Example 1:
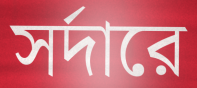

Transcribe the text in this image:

সর্দারে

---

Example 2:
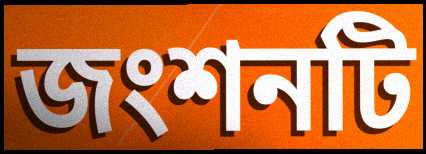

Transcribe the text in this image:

জংশনটি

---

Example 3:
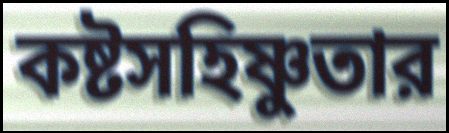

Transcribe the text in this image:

কষ্টসহিষ্ণুতার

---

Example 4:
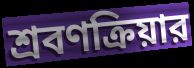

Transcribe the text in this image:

শ্রবণক্রিয়ার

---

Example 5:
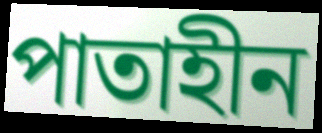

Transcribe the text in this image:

পাতাহীন